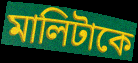
মালিটাকে